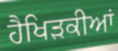
ਹੈਖਿੜਕੀਆਂ